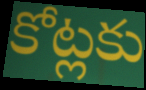
కోట్లకు